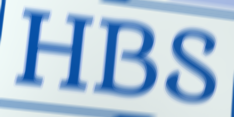
HBS